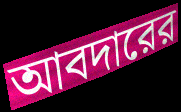
আবদারের